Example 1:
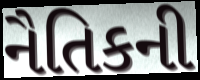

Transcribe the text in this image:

નૈતિકની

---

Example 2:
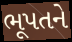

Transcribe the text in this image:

ભૂપતને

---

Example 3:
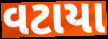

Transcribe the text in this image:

વટાયા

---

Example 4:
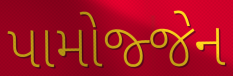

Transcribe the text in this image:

પામોજ્જેન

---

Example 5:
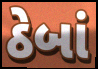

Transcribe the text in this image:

ઠેબાં